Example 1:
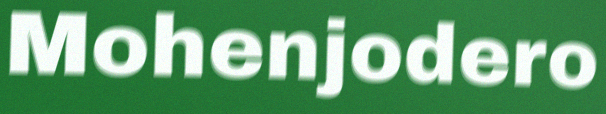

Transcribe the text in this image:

Mohenjodero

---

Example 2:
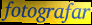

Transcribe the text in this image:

fotografar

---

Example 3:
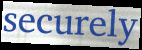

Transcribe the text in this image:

securely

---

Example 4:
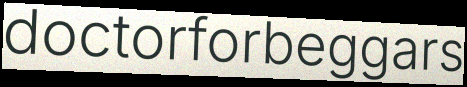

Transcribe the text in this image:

doctorforbeggars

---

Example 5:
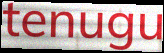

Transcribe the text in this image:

tenugu